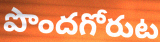
పొందగోరుట